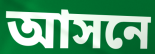
আসনে